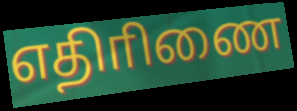
எதிரிணை